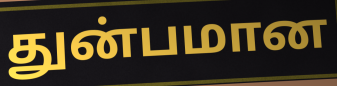
துன்பமான